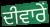
ਦੀਵਾਰੇਂ